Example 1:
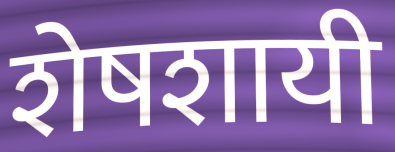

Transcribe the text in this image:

शेषशायी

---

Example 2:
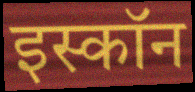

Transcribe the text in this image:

इस्कॉन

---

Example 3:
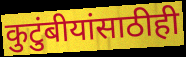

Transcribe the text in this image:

कुटुंबीयांसाठीही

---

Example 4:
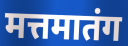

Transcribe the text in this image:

मत्तमातंग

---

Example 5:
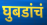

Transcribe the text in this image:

घुबडांचं